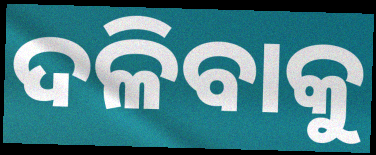
ଦଳିବାକୁ